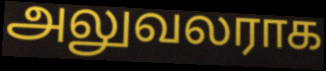
அலுவலராக